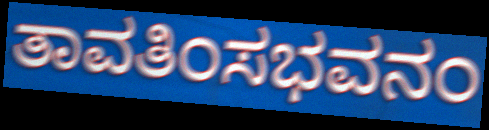
ತಾವತಿಂಸಭವನಂ